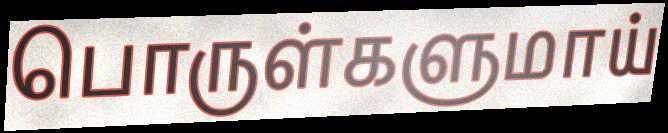
பொருள்களுமாய்